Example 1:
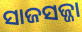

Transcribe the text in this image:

ସାଜସଜ୍ଜା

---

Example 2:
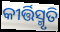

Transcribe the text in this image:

କୀର୍ତ୍ତିସ୍ମୃତି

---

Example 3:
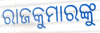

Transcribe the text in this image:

ରାଜକୁମାରଙ୍କୁ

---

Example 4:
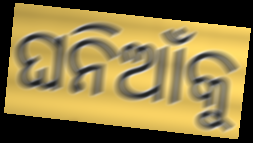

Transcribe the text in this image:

ଘନିଆଁକୁ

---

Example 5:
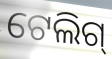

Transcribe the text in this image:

ଟେଲିଗ୍